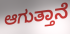
ಆಗುತ್ತಾನೆ